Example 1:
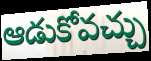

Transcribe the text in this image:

ఆడుకోవచ్చు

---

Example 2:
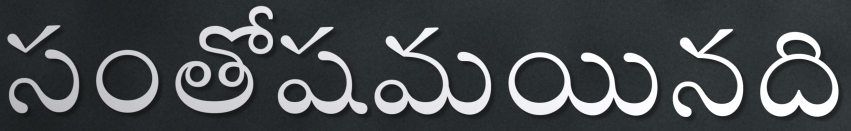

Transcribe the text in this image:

సంతోషమయినది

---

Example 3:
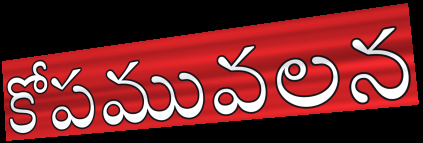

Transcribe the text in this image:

కోపమువలన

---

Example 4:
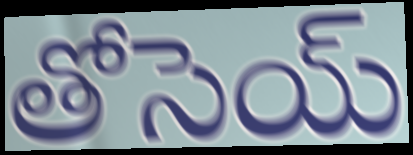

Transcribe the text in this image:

తోసెయ్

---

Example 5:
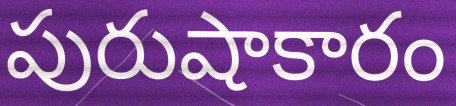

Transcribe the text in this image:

పురుషాకారం